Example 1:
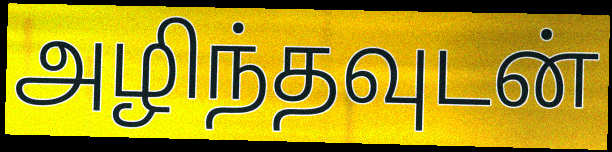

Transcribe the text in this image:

அழிந்தவுடன்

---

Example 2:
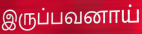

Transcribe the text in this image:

இருப்பவனாய்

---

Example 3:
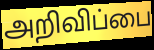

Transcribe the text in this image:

அறிவிப்பை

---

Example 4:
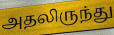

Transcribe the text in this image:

அதலிருந்து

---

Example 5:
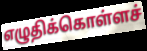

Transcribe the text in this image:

எழுதிக்கொள்ளச்